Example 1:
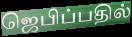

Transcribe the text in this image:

ஜெபிப்பதில்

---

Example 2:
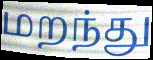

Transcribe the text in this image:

மறந்து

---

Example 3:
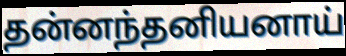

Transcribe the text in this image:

தன்னந்தனியனாய்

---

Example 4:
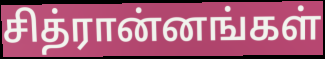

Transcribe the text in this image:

சித்ரான்னங்கள்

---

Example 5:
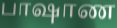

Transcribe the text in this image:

பாஷாண